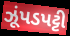
ઝૂંપડપટ્ટી